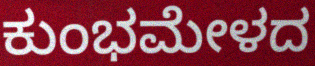
ಕುಂಭಮೇಳದ